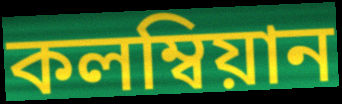
কলম্বিয়ান